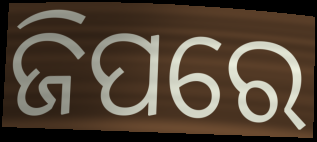
ଜିପରେ